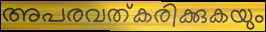
അപരവത്കരിക്കുകയും